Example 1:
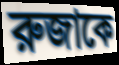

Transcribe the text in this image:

রুজাকে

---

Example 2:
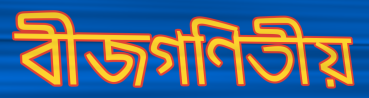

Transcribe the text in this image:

বীজগণিতীয়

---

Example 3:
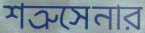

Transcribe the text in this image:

শত্রুসেনার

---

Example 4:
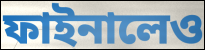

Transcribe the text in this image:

ফাইনালেও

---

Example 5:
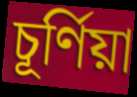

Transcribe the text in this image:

চূর্ণিয়া